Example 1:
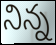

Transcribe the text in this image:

నిన్న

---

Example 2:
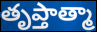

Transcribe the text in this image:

తృప్తాత్మా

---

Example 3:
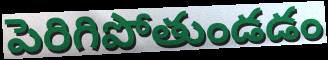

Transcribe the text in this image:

పెరిగిపోతుండడం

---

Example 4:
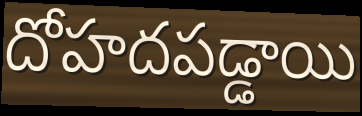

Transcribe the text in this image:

దోహదపడ్డాయి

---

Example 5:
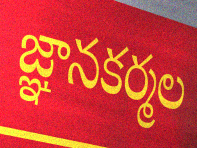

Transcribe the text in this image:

జ్ఞానకర్మల